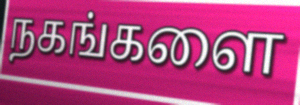
நகங்களை